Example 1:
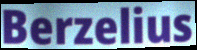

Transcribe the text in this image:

Berzelius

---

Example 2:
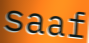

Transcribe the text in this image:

saaf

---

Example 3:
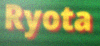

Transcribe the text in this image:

Ryota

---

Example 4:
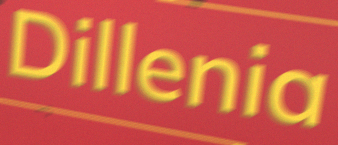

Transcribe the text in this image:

Dillenia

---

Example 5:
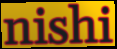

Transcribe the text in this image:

nishi